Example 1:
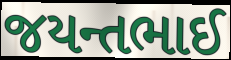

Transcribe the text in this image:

જયન્તભાઈ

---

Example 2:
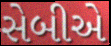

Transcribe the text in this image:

સેબીએ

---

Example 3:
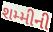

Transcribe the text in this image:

શમ્મીની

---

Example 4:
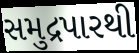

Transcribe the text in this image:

સમુદ્રપારથી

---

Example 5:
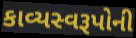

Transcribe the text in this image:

કાવ્યસ્વરૂપોની